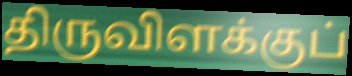
திருவிளக்குப்